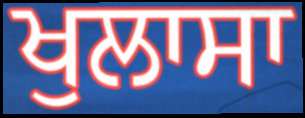
ਖੁਲਾਸਾ